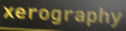
xerography